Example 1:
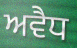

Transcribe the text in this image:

ਅਵੈਧ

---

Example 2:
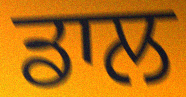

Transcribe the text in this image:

ਡਾਲ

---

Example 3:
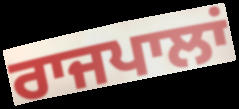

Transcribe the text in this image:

ਰਾਜਪਾਲਾਂ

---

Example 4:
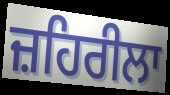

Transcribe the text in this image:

ਜ਼ਹਿਰੀਲਾ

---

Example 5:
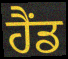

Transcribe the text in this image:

ਹੈਂਡ